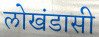
लोखंडासी